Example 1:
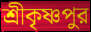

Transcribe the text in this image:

শ্রীকৃষ্ণপুর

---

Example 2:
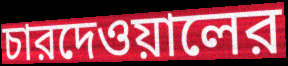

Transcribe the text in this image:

চারদেওয়ালের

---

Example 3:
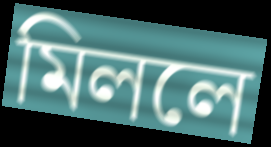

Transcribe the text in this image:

মিললে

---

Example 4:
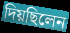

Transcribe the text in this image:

দিয়ছিলেন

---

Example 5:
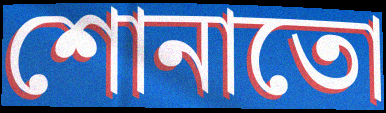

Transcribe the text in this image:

শোনাতো